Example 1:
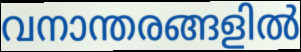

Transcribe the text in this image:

വനാന്തരങ്ങളിൽ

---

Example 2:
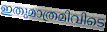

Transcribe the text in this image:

ഇതുമാത്രമിവിടെ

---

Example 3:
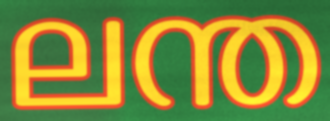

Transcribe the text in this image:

ലന്ത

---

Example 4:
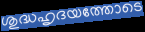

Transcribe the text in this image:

ശുദ്ധഹൃദയത്തോടെ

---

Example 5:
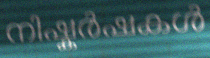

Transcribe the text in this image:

നിഷ്കർഷകൾ